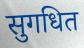
सुगधित